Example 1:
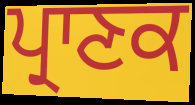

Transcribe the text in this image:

ਪ੍ਰਾਣਕ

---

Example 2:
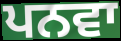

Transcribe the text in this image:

ਪਨਵਾ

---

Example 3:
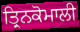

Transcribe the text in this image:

ਤ੍ਰਿਨਕੋਮਾਲੀ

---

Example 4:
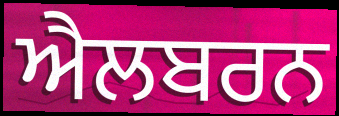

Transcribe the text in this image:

ਐਲਬਰਨ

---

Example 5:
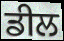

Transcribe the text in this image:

ਡੀਲ